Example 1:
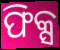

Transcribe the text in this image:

ଫିକ୍ସ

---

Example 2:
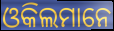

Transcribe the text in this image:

ଓକିଲମାନେ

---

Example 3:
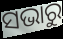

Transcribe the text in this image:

ସଭାରୁ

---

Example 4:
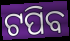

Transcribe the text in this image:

ଟପିବ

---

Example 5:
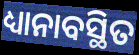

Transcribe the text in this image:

ଧ୍ୟାନାବସ୍ଥିତ